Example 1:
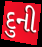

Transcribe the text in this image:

દુની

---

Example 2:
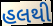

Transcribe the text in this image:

હલથી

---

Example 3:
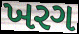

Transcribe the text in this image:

ખરગ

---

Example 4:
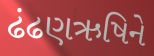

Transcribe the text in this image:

ઢંઢણઋષિને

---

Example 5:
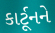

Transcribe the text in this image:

કાર્ટૂનને